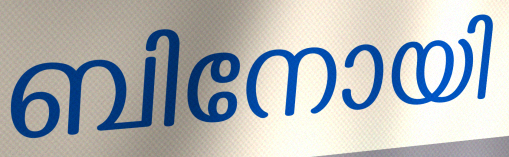
ബിനോയി